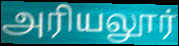
அரியலூர்